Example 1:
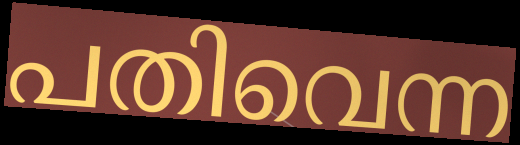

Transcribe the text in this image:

പതിവെന്ന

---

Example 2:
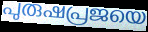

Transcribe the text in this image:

പുരുഷപ്രജയെ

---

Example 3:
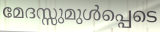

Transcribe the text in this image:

മേദസ്സുമുൾപ്പെടെ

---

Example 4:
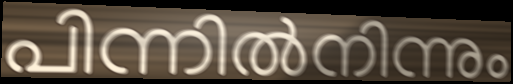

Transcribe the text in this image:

പിന്നിൽനിന്നും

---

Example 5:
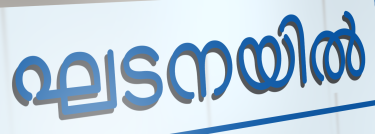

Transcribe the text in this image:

ഘടനയിൽ